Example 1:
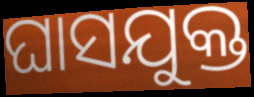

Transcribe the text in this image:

ଘାସଯୁକ୍ତ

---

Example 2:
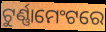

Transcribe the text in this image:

ଟୁର୍ଣ୍ଣାମେଂଟରେ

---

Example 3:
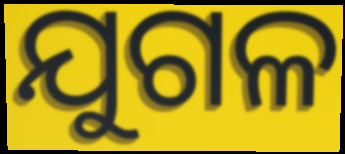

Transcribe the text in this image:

ଯୁଗଳ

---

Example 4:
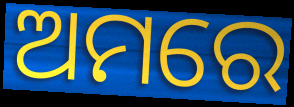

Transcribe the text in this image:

ଅମରେ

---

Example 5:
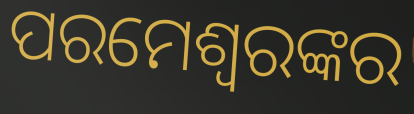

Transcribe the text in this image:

ପରମେଶ୍ଵରଙ୍କର